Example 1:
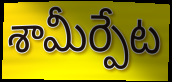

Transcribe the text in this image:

శామీర్పేట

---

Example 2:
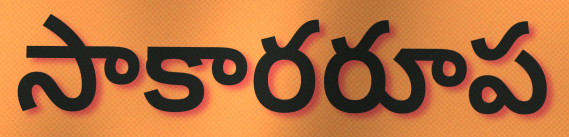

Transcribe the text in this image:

సాకారరూప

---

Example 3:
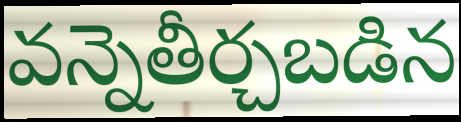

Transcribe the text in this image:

వన్నెతీర్చబడిన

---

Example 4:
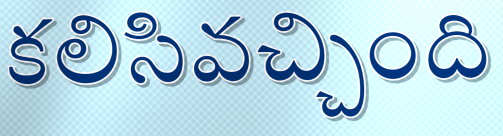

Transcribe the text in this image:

కలిసివచ్చింది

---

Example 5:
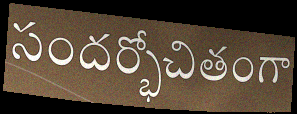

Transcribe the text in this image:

సందర్భోచితంగా